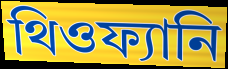
থিওফ্যানি